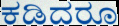
ಕಡಿದರೂ